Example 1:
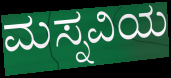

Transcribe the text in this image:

ಮಸ್ನವಿಯ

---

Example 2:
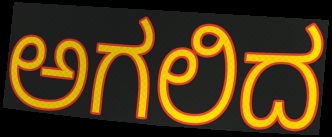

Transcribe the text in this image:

ಅಗಲಿದ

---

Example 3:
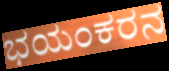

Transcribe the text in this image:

ಭಯಂಕರನ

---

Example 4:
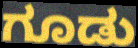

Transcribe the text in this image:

ಗೂಡು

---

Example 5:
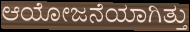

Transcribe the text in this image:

ಆಯೋಜನೆಯಾಗಿತ್ತು